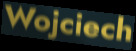
Wojciech